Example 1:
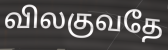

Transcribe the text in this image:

விலகுவதே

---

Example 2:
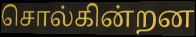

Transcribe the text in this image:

சொல்கின்றன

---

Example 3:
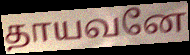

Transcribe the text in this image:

தாயவனே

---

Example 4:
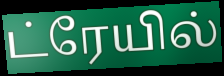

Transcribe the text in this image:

ட்ரேயில்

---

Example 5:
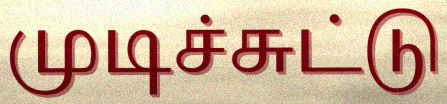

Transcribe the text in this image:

முடிச்சுட்டு